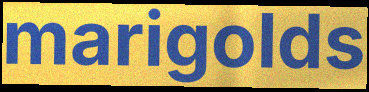
marigolds